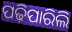
ପଢ଼ିପାରିଲି